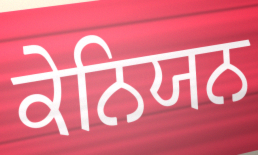
ਕੇਨਿਯਨ